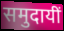
समुदायीं